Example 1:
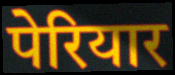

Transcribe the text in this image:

पेरियार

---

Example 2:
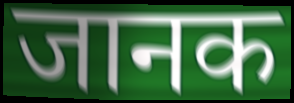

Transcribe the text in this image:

जानक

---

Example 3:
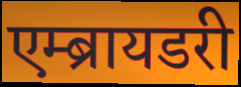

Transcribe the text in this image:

एम्ब्रायडरी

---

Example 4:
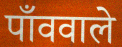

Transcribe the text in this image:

पाँववाले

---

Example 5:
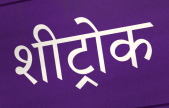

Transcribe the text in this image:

शीट्रोक